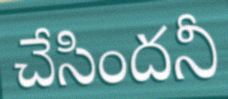
చేసిందనీ